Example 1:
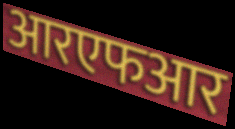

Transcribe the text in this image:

आरएफआर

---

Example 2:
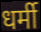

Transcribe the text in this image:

धर्मी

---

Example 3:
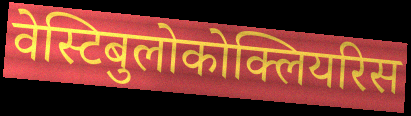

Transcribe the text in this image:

वेस्टिबुलोकोक्लियरिस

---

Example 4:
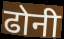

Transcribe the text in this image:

ढोनी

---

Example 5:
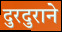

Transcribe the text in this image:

दुरदुराने